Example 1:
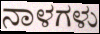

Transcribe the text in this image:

ನಾಳಗಳು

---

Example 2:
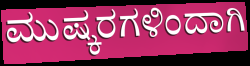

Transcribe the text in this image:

ಮುಷ್ಕರಗಳಿಂದಾಗಿ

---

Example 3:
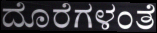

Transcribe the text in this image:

ದೊರೆಗಳಂತೆ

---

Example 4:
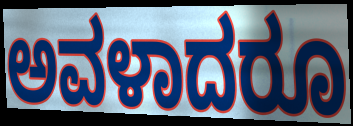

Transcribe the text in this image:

ಅವಳಾದರೂ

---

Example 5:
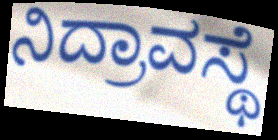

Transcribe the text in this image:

ನಿದ್ರಾವಸ್ಥೆ